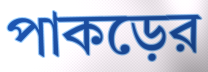
পাকড়ের